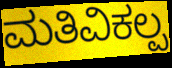
ಮತಿವಿಕಲ್ಪ